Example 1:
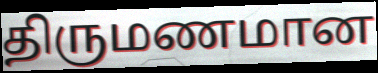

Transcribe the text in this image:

திருமணமான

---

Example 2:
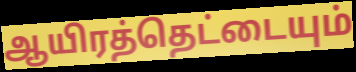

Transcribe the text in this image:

ஆயிரத்தெட்டையும்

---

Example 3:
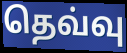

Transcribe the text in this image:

தெவ்வு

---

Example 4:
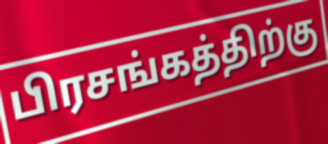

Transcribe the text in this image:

பிரசங்கத்திற்கு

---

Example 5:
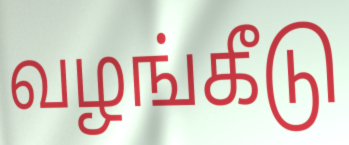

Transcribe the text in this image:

வழங்கீடு